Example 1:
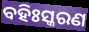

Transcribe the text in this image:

ବହିଃସ୍କରଣ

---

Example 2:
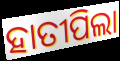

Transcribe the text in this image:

ହାତୀପିଲା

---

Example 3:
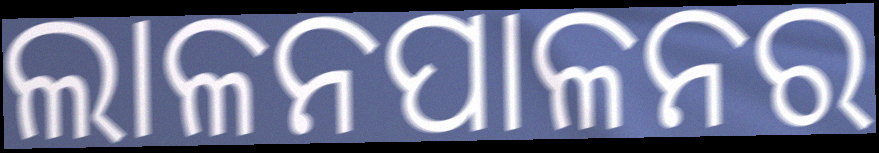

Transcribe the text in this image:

ଲାଳନପାଳନର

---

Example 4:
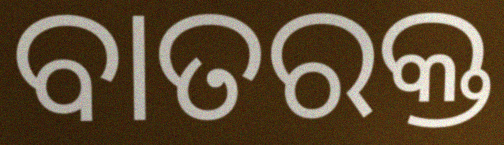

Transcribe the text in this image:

ବାତରକ୍ତ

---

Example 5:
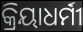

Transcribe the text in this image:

କ୍ରିୟାଧର୍ମୀ